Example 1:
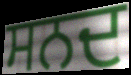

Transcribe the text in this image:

ਸਨਦ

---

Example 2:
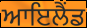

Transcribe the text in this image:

ਆਇਲੈੰਡ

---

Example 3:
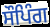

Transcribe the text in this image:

ਸੌਪਿੰਗ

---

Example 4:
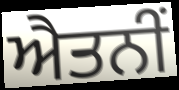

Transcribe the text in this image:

ਐਤਨੀਂ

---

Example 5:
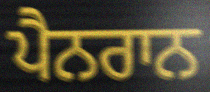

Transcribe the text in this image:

ਪੈਨਰਾਨ